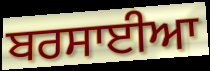
ਬਰਸਾਈਆ